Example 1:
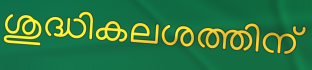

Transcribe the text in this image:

ശുദ്ധികലശത്തിന്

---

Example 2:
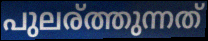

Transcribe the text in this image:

പുലര്ത്തുന്നത്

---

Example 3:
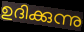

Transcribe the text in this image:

ഉദിക്കുന്നു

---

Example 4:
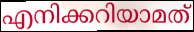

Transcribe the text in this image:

എനിക്കറിയാമത്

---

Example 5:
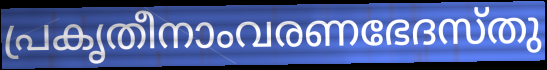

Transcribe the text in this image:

പ്രകൃതീനാംവരണഭേദസ്തു